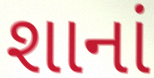
શાનાં